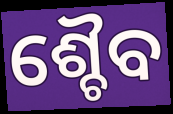
ଶ୍ଚୈବ